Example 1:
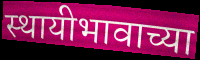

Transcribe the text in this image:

स्थायीभावाच्या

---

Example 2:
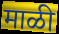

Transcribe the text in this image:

माळी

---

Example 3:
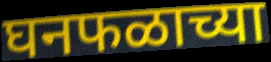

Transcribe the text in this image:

घनफळाच्या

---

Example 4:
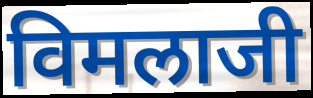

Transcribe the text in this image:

विमलाजी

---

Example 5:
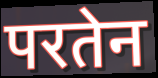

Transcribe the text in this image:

परतेन